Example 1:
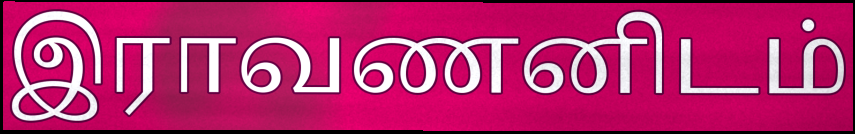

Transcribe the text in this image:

இராவணனிடம்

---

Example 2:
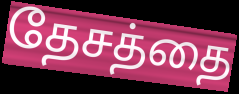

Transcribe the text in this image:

தேசத்தை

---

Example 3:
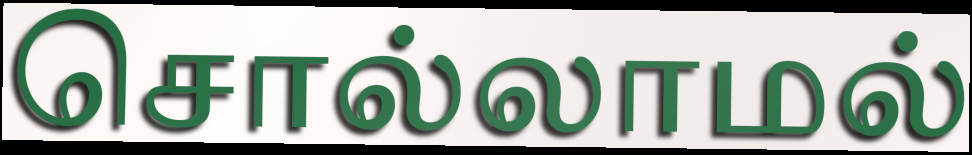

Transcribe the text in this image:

சொல்லாமல்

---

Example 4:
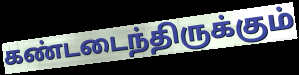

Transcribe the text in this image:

கண்டடைந்திருக்கும்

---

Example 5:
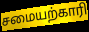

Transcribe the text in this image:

சமையற்காரி